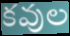
కవుల